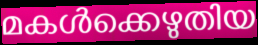
മകൾക്കെഴുതിയ